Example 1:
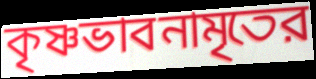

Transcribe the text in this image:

কৃষ্ণভাবনামৃতের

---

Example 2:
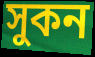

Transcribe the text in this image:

সুকন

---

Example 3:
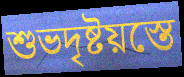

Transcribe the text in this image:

শুভদৃষ্টয়স্তে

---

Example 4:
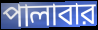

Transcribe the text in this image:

পালাবার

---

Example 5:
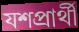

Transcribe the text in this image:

যশপ্রার্থী